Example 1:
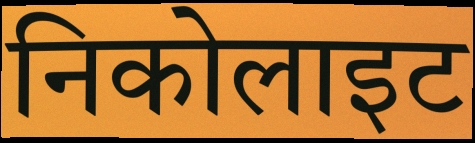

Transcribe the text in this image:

निकोलाइट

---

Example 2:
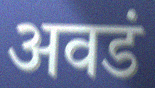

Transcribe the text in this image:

अवडं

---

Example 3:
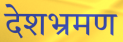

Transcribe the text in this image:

देशभ्रमण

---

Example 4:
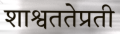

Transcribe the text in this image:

शाश्वततेप्रती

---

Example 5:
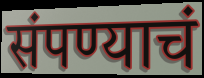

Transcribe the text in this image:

संपण्याचं